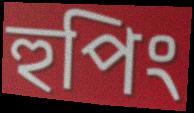
হুপিং